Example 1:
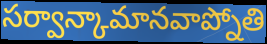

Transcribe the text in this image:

సర్వాన్కామానవాప్నోతి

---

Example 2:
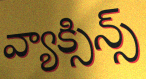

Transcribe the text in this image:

వ్యాక్సిన్స్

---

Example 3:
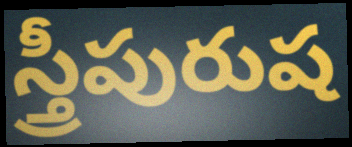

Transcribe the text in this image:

స్త్రీపురుష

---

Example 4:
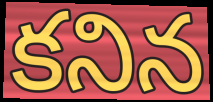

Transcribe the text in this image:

కనిన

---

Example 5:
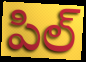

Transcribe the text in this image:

పిల్